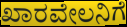
ಖಾರವೇಲನಿಗೆ